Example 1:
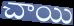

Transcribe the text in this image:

చాయి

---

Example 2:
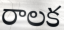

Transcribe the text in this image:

రాలక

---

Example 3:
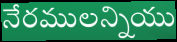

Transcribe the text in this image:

నేరములన్నియు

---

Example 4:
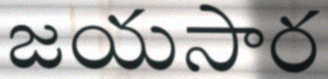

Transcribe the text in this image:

జయసార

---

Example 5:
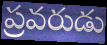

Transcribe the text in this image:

ప్రవరుడు